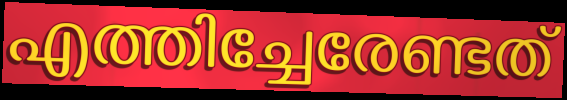
എത്തിച്ചേരേണ്ടത്